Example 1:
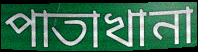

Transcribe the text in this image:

পাতাখানা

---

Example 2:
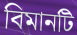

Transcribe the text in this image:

বিমানটি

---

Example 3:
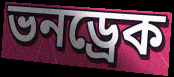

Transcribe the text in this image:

ভনড্রেক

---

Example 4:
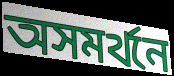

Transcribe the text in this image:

অসমর্থনে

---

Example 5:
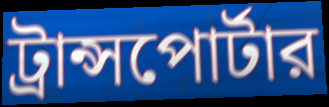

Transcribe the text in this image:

ট্রান্সপোর্টার